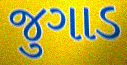
જુગાડ